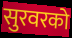
सुरवरको